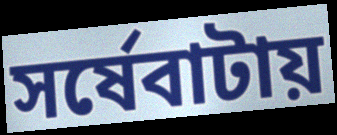
সর্ষেবাটায়